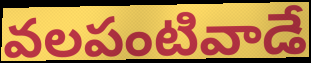
వలపంటివాడే